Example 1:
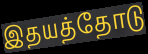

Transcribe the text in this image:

இதயத்தோடு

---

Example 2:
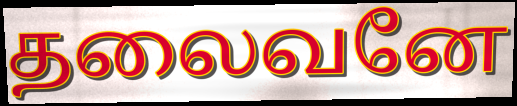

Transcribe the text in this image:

தலைவனே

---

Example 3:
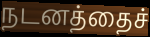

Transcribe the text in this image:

நடனத்தைச்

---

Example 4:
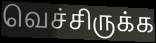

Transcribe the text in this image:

வெச்சிருக்க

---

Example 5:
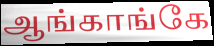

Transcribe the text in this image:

ஆங்காங்கே